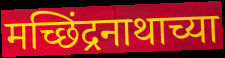
मच्छिंद्रनाथाच्या